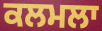
ਕਲਮਲਾ